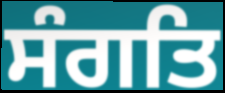
ਸੰਗਤਿ